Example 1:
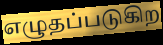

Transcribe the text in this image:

எழுதப்படுகிற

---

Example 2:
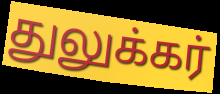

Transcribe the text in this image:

துலுக்கர்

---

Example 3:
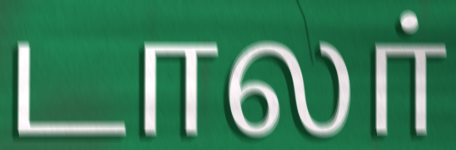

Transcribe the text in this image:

டாலர்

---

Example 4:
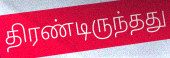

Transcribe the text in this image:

திரண்டிருந்தது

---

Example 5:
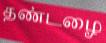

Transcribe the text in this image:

தண்டழை